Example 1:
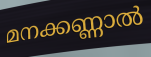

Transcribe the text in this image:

മനക്കണ്ണാൽ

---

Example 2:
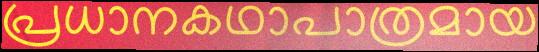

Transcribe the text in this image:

പ്രധാനകഥാപാത്രമായ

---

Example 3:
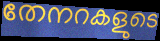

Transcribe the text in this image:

തേനറകളുടെ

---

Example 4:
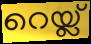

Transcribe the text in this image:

റെയ്ല്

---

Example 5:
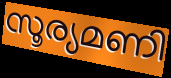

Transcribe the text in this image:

സൂര്യമണി